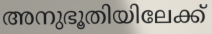
അനുഭൂതിയിലേക്ക്